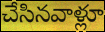
చేసినవాళ్లూ